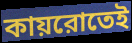
কায়রোতেই